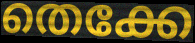
തെക്കേ